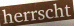
herrscht